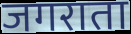
जगराता